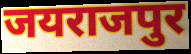
जयराजपुर